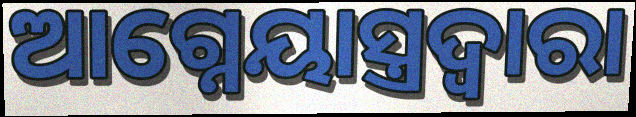
ଆଗ୍ନେୟାସ୍ତ୍ରଦ୍ୱାରା